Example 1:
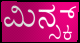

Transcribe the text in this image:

ಮಿನ್ಸ್ಕ್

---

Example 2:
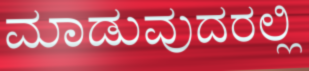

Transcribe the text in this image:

ಮಾಡುವುದರಲ್ಲಿ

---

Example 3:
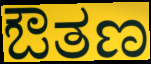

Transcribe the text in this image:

ಔತಣ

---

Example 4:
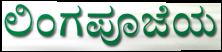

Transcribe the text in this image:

ಲಿಂಗಪೂಜೆಯ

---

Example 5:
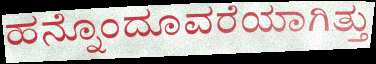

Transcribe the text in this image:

ಹನ್ನೊಂದೂವರೆಯಾಗಿತ್ತು